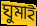
ঘুমাই